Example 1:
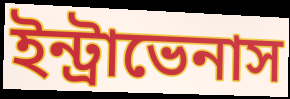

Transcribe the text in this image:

ইন্ট্রাভেনাস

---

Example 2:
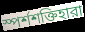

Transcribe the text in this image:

স্পর্শশক্তিহারা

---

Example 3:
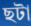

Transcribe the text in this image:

ছটা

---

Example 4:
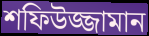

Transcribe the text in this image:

শফিউজ্জামান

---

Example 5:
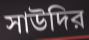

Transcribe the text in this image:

সাউদির